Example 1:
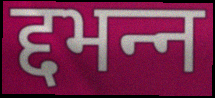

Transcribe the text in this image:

द्दभन्न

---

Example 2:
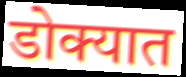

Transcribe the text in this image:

डोक्यात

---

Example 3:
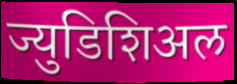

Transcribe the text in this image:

ज्युडिशिअल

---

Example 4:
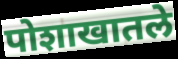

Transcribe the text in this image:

पोशाखातले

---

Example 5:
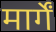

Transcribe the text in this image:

मार्गें